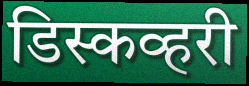
डिस्कव्हरी